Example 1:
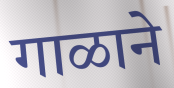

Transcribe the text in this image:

गाळाने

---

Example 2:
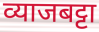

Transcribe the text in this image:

व्याजबट्टा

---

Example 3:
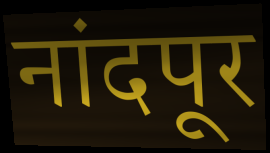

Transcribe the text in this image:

नांदपूर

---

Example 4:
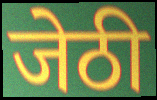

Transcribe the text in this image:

जेठी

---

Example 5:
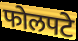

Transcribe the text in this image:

फोलपटे